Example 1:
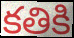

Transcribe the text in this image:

కతికి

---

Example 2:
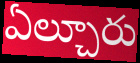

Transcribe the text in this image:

ఏల్చూరు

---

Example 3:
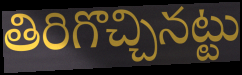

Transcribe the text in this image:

తిరిగొచ్చినట్టు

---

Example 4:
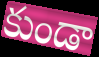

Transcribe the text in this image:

కుండా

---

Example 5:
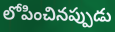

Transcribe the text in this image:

లోపించినప్పుడు